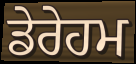
ਡੇਰੇਹਮ